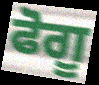
ਫੋਗੂ